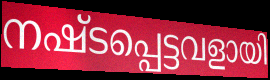
നഷ്ടപ്പെട്ടവളായി